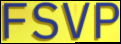
FSVP